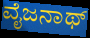
ವೈಜನಾಥ್